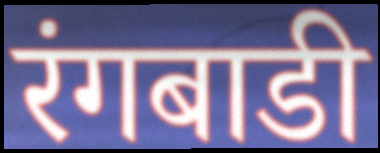
रंगबाडी